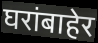
घरांबाहेर